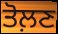
ਤੋਲ਼ਣ